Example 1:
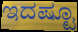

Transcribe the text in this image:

ಇದಷ್ಟೂ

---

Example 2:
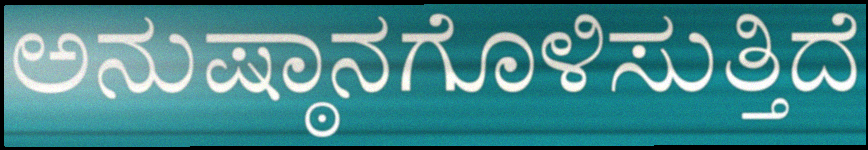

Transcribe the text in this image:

ಅನುಷ್ಠಾನಗೊಳಿಸುತ್ತಿದೆ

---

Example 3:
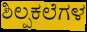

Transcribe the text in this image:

ಶಿಲ್ಪಕಲೆಗಳ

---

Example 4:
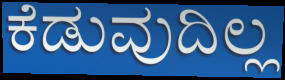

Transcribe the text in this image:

ಕೆಡುವುದಿಲ್ಲ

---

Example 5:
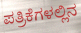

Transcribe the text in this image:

ಪತ್ರಿಕೆಗಳಲ್ಲಿನ